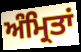
ਅੰਮ੍ਰਿਤਾਂ